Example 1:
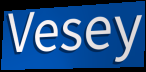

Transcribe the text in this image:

Vesey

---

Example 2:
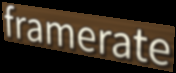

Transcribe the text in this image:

framerate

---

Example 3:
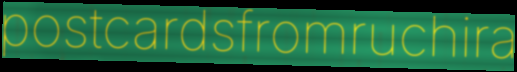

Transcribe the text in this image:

postcardsfromruchira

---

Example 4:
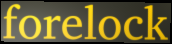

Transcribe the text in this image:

forelock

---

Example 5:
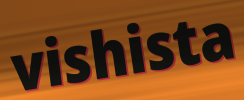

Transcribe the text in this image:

vishista